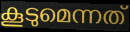
കൂടുമെന്നത്